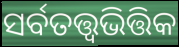
ସର୍ବତତ୍ତ୍ୱଭିତ୍ତିକ